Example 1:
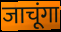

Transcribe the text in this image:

जाचूंगा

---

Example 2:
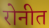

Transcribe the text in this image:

रोनीत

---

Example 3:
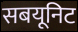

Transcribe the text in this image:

सबयूनिट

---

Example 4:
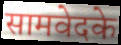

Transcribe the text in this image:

सामवेदके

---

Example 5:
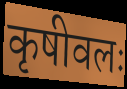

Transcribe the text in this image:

कृषीवलः